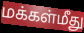
மக்கள்மீது